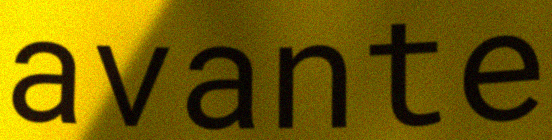
avante